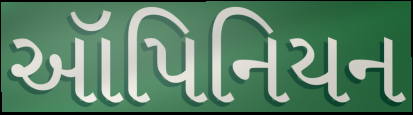
ઑપિનિયન